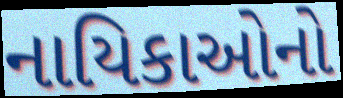
નાયિકાઓનો